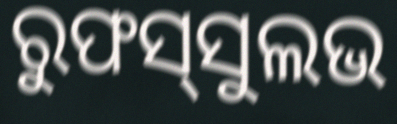
ରୁଫସ୍‌ସୁଲଭ